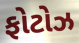
ફોટોઝ